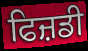
ਫਿਜ਼ਡੀ